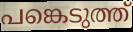
പങ്കെടുത്ത്